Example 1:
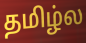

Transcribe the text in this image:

தமிழ்ல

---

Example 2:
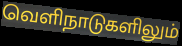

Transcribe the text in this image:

வெளிநாடுகளிலும்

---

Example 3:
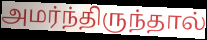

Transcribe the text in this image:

அமர்ந்திருந்தால்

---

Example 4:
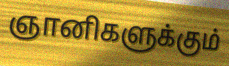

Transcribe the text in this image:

ஞானிகளுக்கும்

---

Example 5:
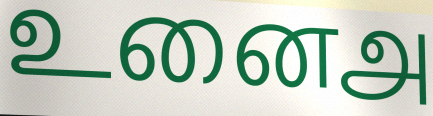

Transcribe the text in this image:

உனைஅ